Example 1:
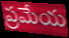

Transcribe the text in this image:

ప్రమేయ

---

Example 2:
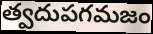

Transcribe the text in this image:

త్వదుపగమజం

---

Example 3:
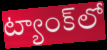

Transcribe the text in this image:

ట్యాంక్‌లో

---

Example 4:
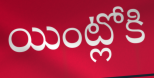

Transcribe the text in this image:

యింట్లోకి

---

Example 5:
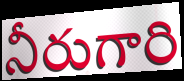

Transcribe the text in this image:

నీరుగారి